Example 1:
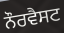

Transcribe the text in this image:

ਨੌਰਵੈਸਟ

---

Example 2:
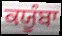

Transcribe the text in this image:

ਕਯੂੰਬਾ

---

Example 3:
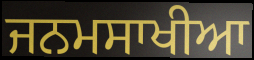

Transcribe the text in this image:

ਜਨਮਸਾਖੀਆ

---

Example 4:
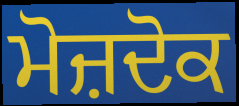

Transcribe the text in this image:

ਮੋਜ਼ਦੋਕ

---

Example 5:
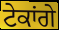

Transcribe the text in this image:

ਟੇਕਾਂਗੇ